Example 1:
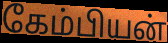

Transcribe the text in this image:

கேம்பியன்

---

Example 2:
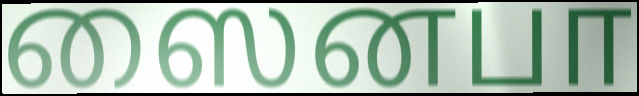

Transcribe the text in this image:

ஸைனபா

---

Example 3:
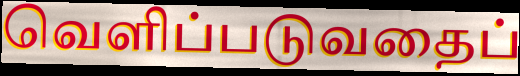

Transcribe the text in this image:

வெளிப்படுவதைப்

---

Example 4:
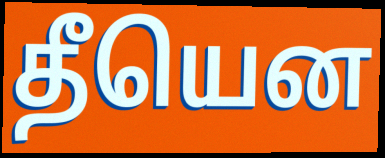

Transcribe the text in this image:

தீயென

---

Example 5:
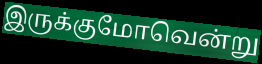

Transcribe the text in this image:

இருக்குமோவென்று